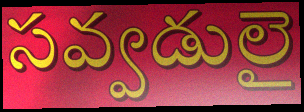
సవ్వడులై